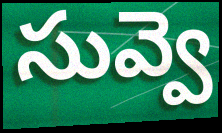
సువ్వె